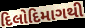
દિલોદિમાગથી